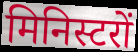
मिनिस्टरों